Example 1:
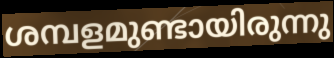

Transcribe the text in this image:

ശമ്പളമുണ്ടായിരുന്നു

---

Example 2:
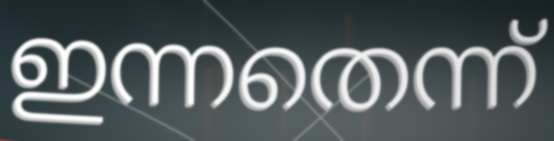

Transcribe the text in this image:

ഇന്നതെന്ന്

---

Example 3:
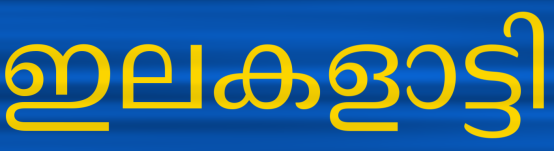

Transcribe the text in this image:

ഇലകളാട്ടി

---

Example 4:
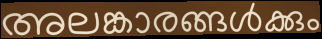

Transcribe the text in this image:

അലങ്കാരങ്ങൾക്കും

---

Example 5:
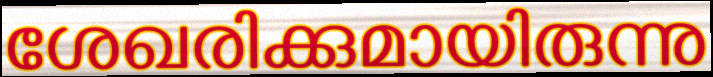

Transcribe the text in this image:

ശേഖരിക്കുമായിരുന്നു